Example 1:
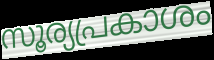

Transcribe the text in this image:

സൂര്യപ്രകാശം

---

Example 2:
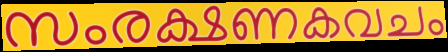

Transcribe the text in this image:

സംരക്ഷണകവചം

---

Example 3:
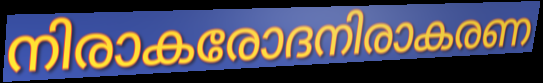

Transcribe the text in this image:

നിരാകരോദനിരാകരണ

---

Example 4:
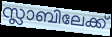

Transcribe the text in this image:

സ്ലാബിലേക്ക്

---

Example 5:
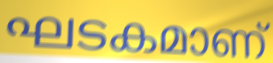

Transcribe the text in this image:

ഘടകമാണ്